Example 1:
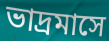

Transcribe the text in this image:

ভাদ্রমাসে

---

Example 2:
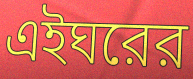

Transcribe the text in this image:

এইঘরের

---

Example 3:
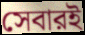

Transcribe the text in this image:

সেবারই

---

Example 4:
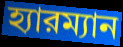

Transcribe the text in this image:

হ্যারম্যান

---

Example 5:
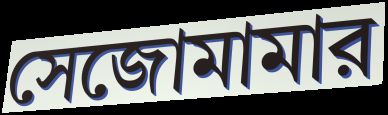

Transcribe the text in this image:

সেজোমামার